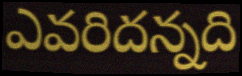
ఎవరిదన్నది